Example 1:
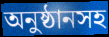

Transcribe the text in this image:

অনুষ্ঠানসহ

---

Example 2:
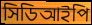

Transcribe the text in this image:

সিডিআইপি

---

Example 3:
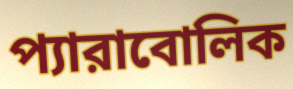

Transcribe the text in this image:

প্যারাবোলিক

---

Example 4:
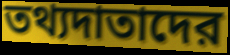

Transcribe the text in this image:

তথ্যদাতাদের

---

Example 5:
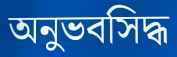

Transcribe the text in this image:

অনুভবসিদ্ধ